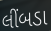
લીંબડા